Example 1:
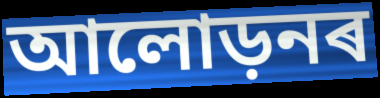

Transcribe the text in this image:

আলোড়নৰ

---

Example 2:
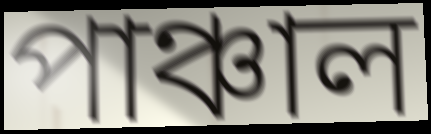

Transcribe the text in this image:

পাঞ্চাল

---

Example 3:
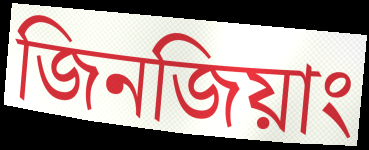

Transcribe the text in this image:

জিনজিয়াং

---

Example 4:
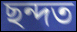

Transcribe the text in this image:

ছন্দত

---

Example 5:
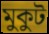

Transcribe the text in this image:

মুকুট